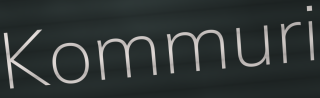
Kommuri